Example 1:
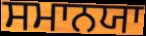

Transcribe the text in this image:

ਸਮਾਨਯਾ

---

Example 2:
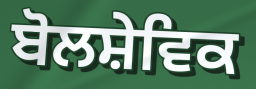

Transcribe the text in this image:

ਬੋਲਸ਼ੇਵਿਕ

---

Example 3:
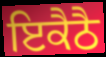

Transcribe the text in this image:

ਇਕੈਠੈ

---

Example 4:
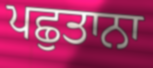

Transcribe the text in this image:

ਪਛੁਤਾਨਾ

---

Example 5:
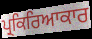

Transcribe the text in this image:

ਪ੍ਰਕਿਰਿਆਕਾਰ